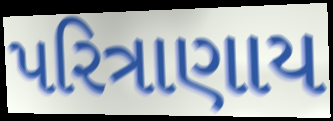
પરિત્રાણાય